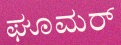
ಘೂಮರ್